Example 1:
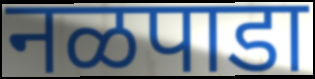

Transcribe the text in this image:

नळपाडा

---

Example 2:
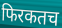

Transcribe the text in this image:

फिरकतच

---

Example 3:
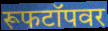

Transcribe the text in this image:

रूफटॉपवर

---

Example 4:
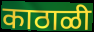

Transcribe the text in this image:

काठाळी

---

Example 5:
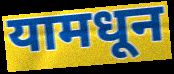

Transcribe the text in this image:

यामधून